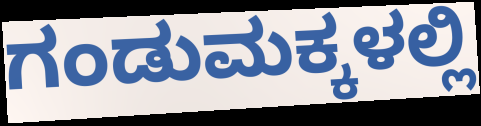
ಗಂಡುಮಕ್ಕಳಲ್ಲಿ